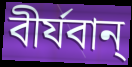
বীর্যবান্